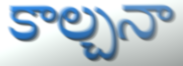
కాల్చనా